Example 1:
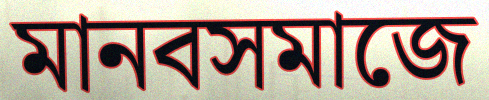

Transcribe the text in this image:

মানবসমাজে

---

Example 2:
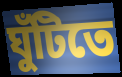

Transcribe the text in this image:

ঘুঁটিতে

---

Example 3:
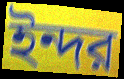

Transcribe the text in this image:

ইন্দর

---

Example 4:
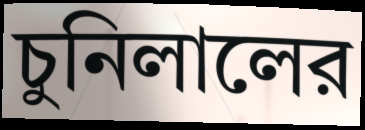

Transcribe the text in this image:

চুনিলালের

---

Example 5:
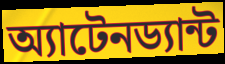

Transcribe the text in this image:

অ্যাটেনড্যান্ট